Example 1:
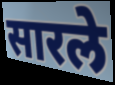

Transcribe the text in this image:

सारले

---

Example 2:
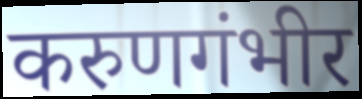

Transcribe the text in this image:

करुणगंभीर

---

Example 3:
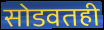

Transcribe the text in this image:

सोडवतही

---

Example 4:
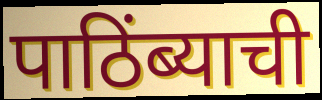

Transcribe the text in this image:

पाठिंब्याची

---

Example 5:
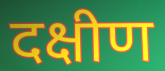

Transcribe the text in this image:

दक्षीण